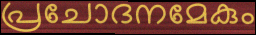
പ്രചോദനമേകും